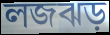
লজঝড়